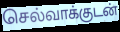
செல்வாக்குடன்